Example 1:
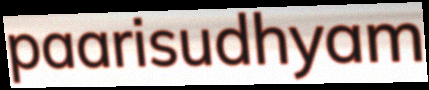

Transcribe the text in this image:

paarisudhyam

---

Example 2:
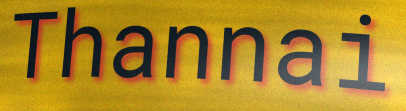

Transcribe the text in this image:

Thannai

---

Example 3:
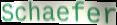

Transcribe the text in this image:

Schaefer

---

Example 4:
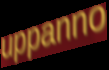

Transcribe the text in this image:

uppanno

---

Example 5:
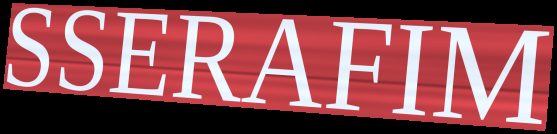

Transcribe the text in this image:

SSERAFIM